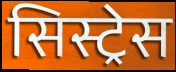
सिस्ट्रेस